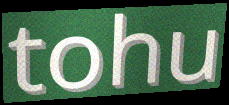
tohu